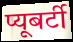
प्‍यूबर्टी